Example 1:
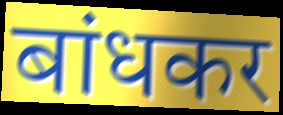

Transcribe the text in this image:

बांधकर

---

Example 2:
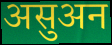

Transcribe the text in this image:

असुअन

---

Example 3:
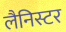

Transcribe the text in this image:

लैनिस्टर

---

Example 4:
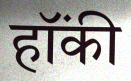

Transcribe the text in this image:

हॉंकी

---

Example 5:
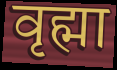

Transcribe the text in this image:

वृह्मा